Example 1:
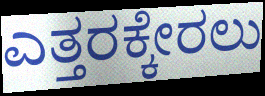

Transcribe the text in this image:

ಎತ್ತರಕ್ಕೇರಲು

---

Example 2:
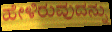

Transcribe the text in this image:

ಹೇಳಿರುವುದನ್ನು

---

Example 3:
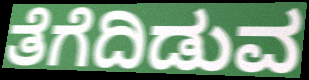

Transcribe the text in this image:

ತೆಗೆದಿಡುವ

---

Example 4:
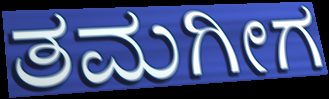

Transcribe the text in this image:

ತಮಗೀಗ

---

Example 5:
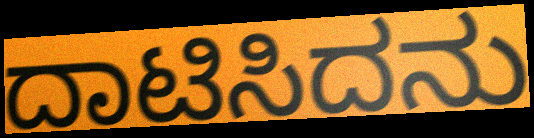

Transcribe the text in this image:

ದಾಟಿಸಿದನು